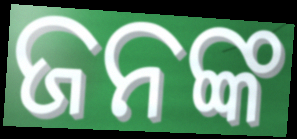
ଜନଙ୍କ